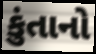
કુંતાનો